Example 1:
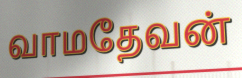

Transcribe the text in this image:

வாமதேவன்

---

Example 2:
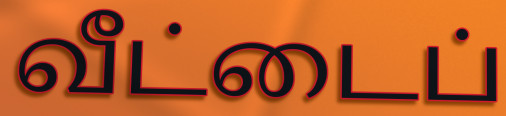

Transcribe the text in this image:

வீட்டைப்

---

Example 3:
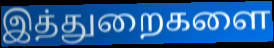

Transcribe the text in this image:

இத்துறைகளை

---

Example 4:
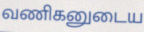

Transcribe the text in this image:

வணிகனுடைய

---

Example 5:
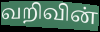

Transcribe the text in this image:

வறிவின்